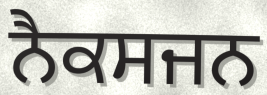
ਨੈਕਸਜਨ